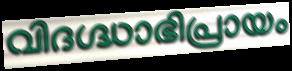
വിദഗ്ദ്ധാഭിപ്രായം